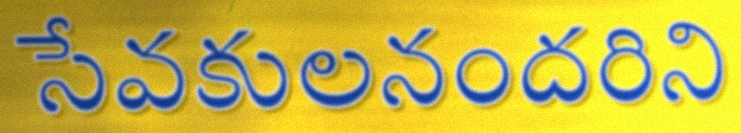
సేవకులనందరిని